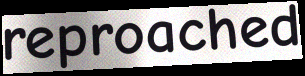
reproached